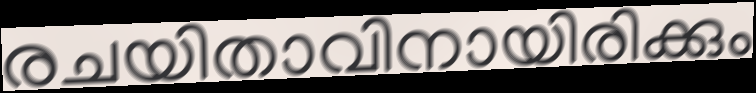
രചയിതാവിനായിരിക്കും